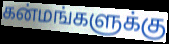
கன்மங்களுக்கு